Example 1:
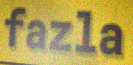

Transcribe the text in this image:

fazla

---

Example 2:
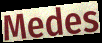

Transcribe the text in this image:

Medes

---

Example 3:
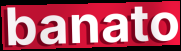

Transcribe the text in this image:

banato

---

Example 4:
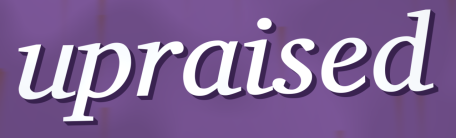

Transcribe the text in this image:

upraised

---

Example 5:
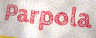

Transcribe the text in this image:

Parpola